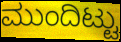
ಮುಂದಿಟ್ಟು